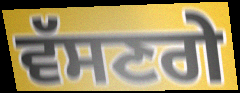
ਵੱਸਣਗੇ